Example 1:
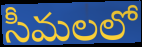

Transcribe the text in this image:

సీమలలో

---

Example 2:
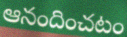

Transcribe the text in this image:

ఆనందించటం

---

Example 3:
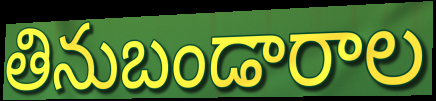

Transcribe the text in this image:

తినుబండారాల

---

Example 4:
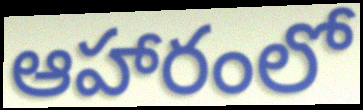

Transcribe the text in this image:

ఆహారంలో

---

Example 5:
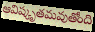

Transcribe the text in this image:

ఆవిష్కృతమవుతోంది